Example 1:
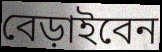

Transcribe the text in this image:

বেড়াইবেন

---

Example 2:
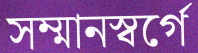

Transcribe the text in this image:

সম্মানস্বর্গে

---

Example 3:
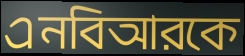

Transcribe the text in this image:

এনবিআরকে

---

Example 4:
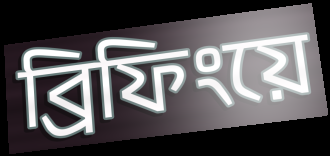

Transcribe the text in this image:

ব্রিফিংয়ে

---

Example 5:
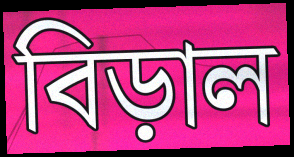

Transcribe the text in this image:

বিড়াল